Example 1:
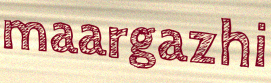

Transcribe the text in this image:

maargazhi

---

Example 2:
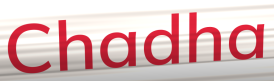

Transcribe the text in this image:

Chadha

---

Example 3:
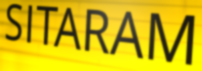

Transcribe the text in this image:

SITARAM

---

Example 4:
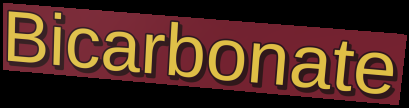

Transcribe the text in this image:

Bicarbonate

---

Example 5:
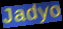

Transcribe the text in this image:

Jadyo